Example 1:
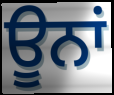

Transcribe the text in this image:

ਊਨਾਂ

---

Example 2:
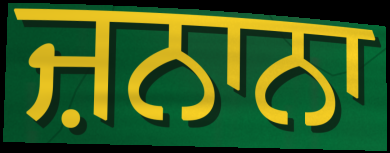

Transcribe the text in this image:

ਜ਼ਨਾਨਾ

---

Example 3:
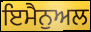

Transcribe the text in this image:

ਇਮੈਨੁਅਲ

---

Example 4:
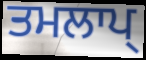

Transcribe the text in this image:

ਤਮਲਾਪ੍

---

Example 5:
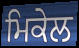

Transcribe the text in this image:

ਮਿਕੇਲ